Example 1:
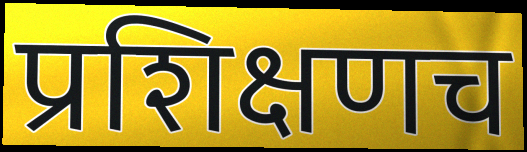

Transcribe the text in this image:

प्रशिक्षणच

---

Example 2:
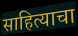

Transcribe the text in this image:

साहित्याचा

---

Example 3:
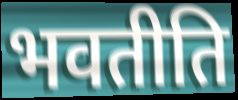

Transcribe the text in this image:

भवतीति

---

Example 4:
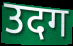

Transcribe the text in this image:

उदग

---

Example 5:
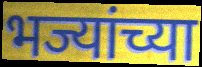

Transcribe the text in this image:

भज्यांच्या